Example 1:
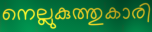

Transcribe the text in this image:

നെല്ലുകുത്തുകാരി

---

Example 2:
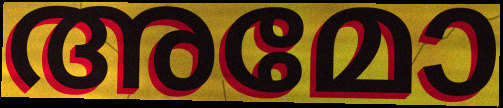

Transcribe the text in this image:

അമോ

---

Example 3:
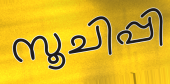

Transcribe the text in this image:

സൂചിപ്പി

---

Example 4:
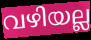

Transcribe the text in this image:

വഴിയല്ല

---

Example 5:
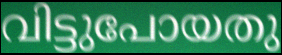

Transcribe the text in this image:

വിട്ടുപോയതു